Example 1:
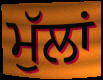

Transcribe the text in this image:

ਮੁੱਲਾਂ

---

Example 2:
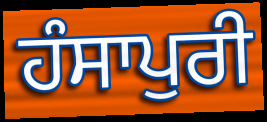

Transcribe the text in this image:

ਹੰਸਾਪੁਰੀ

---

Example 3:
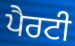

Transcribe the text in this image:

ਪੈਰਟੀ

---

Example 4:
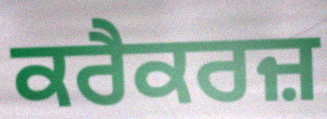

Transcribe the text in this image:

ਕਰੈਕਰਜ਼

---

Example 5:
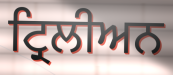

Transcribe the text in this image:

ਟ੍ਰਿਲੀਅਨ